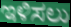
ಇಳಿಸಲು